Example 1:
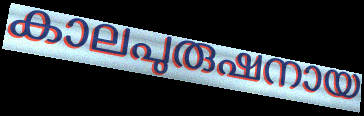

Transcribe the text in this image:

കാലപുരുഷനായ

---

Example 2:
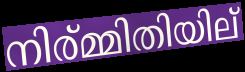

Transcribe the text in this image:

നിര്മ്മിതിയില്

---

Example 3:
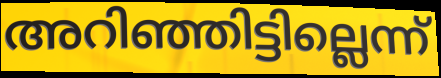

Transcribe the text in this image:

അറിഞ്ഞിട്ടില്ലെന്ന്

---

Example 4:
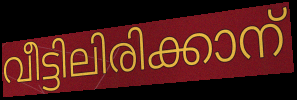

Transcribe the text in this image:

വീട്ടിലിരിക്കാന്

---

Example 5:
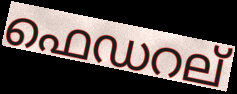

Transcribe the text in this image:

ഫെഡറല്